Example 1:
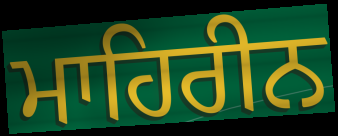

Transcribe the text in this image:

ਮਾਹਿਰੀਨ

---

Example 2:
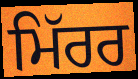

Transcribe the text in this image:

ਮਿੱਰਰ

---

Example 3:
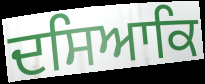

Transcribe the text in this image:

ਦਸਿਆਕਿ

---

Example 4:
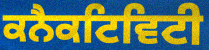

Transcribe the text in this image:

ਕਨੈਕਟਿਵਿਟੀ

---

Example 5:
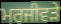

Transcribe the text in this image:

ਮਰਜੀਵੜੇ